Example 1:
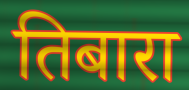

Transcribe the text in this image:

तिबारा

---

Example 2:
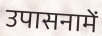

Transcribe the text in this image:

उपासनामें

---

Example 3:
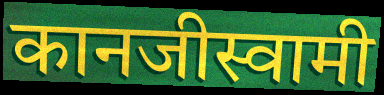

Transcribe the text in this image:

कानजीस्वामी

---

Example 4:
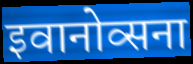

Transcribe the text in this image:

इवानोव्सना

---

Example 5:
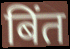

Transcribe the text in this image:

बिंत